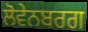
ਲੋਵੇਨਬਰਗ